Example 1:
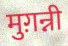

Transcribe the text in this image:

मुग़न्नी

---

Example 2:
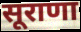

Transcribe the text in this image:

सूराणा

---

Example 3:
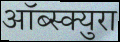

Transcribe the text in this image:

ऑब्स्क्युरा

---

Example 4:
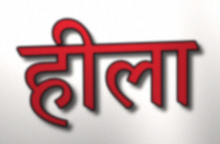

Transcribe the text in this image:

हीला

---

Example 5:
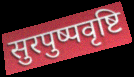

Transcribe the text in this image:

सुरपुष्पवृष्टि